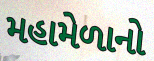
મહામેળાનો